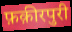
फ़क़ीरपुरी